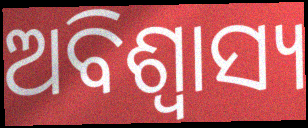
ଅବିଶ୍ଵାସ୍ୟ